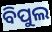
ବିପୁଲ